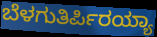
ಬೆಳಗುತಿರ್ಪಿರಯ್ಯಾ